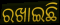
ରଖାଇଛି